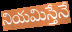
నియమిస్తేనే